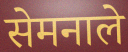
सेमनाले